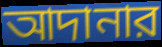
আদানার